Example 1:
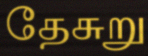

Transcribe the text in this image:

தேசுறு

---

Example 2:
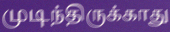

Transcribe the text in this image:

முடிந்திருக்காது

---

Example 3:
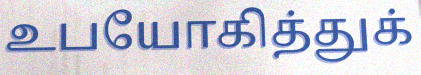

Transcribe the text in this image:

உபயோகித்துக்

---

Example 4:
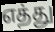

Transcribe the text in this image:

எத்து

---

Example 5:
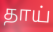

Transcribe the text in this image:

தாய்